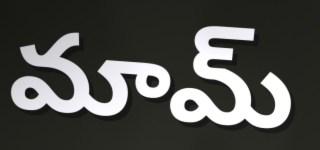
మామ్